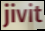
jivit